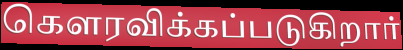
கௌரவிக்கப்படுகிறார்